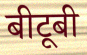
बीटूबी